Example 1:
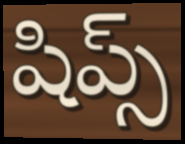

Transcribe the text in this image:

షిప్స్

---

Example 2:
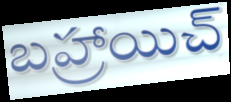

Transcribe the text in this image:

బహ్రాయిచ్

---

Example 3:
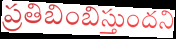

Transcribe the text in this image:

ప్రతిబింబిస్తుందని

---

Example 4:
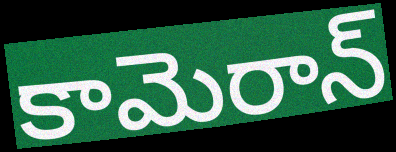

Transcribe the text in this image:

కామెరాన్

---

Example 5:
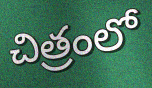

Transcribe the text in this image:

చిత్రంలో